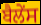
ਬੈਲੇਂਸ